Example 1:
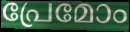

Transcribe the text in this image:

പ്രേമോം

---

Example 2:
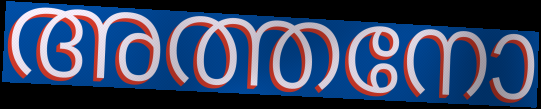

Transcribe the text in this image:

അത്തനോ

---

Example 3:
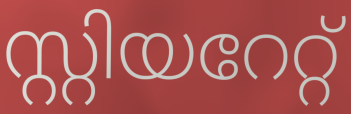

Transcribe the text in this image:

സ്റ്റിയറേറ്റ്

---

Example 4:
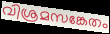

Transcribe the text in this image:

വിശ്രമസങ്കേതം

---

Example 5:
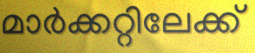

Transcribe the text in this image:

മാർക്കറ്റിലേക്ക്